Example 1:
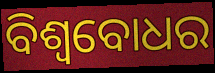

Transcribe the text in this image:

ବିଶ୍ବବୋଧର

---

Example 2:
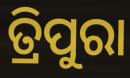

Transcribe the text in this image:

ତ୍ରିପୁରା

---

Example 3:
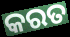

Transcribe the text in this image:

କରତ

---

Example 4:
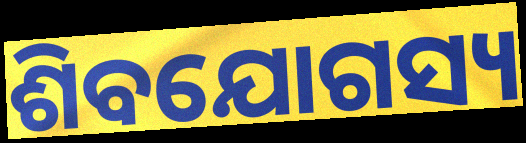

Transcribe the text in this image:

ଶିବଯୋଗସ୍ୟ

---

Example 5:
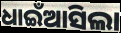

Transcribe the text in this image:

ଧାଇଁଆସିଲା